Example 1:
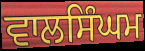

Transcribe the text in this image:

ਵਾਲਸਿੰਘਮ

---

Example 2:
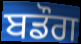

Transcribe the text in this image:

ਬਡੌਗ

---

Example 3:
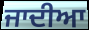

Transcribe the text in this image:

ਜਾਦੀਆ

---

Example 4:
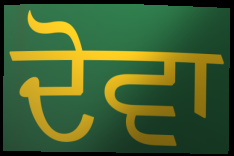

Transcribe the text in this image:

ਦੋਵਾ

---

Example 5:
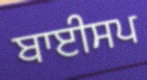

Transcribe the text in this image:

ਬਾਈਸਪ